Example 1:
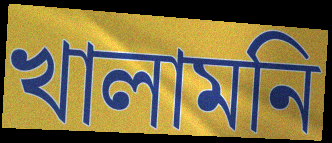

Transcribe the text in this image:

খালামনি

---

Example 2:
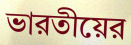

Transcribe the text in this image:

ভারতীয়ের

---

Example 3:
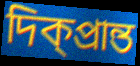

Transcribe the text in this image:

দিক্‌প্রান্ত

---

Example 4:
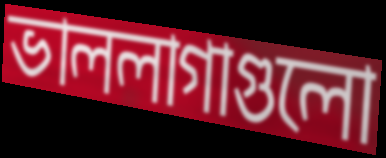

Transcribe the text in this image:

ভাললাগাগুলো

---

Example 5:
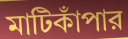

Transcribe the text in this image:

মাটিকাঁপার